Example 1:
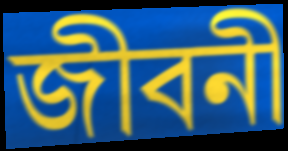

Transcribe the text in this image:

জীবনী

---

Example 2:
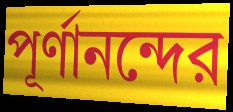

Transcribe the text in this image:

পূর্ণানন্দের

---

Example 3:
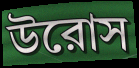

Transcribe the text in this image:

উরোস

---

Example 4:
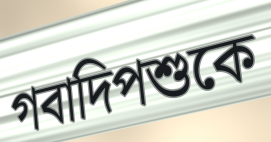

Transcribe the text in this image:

গবাদিপশুকে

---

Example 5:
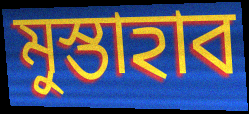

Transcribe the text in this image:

মুস্তাহাব